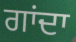
ਗਾਂਦਾ